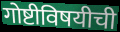
गोष्टीविषयीची